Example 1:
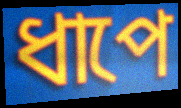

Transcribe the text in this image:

ধাপে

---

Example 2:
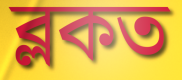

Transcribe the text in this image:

ব্লকত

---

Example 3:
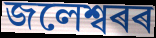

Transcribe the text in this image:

জলেশ্বৰৰ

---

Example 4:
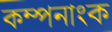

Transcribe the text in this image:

কম্পনাংক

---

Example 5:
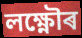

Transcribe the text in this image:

লক্ষ্ণৌৰ